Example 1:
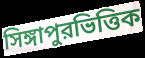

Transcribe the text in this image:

সিঙ্গাপুরভিত্তিক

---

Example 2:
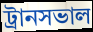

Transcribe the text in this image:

ট্রানসভাল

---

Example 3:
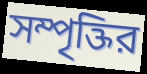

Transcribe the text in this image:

সম্পৃক্তির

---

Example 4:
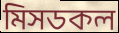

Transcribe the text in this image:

মিসডকল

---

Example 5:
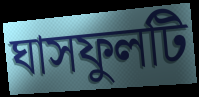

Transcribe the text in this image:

ঘাসফুলটি